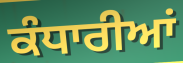
ਕੰਧਾਰੀਆਂ